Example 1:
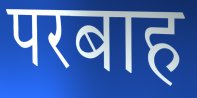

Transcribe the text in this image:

परबाह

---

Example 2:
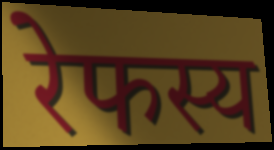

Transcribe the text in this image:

रेफस्य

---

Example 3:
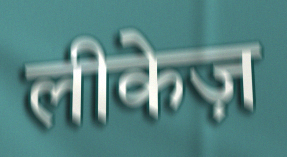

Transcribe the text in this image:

लीकेज़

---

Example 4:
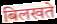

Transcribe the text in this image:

बिलखते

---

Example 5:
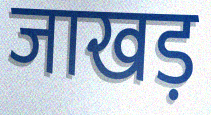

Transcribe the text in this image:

जाखड़